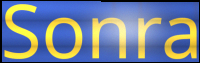
Sonra